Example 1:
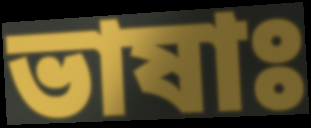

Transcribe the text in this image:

ভাষাঃ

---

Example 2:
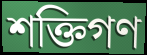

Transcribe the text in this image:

শক্তিগণ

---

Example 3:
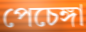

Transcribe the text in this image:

পেচেঙ্গা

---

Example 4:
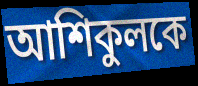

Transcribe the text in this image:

আশিকুলকে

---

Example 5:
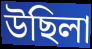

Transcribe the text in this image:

উছিলা